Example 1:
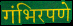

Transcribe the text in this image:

गंभिरपणे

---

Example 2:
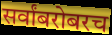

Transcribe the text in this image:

सर्वांबरोबरच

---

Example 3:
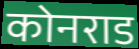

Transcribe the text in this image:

कोनराड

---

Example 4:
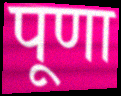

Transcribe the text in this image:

पूणा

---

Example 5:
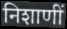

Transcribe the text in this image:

निशाणीं